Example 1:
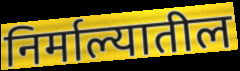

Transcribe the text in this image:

निर्माल्यातील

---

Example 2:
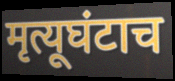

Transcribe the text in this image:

मृत्यूघंटाच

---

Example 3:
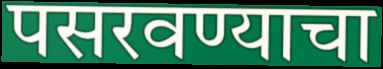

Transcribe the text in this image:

पसरवण्याचा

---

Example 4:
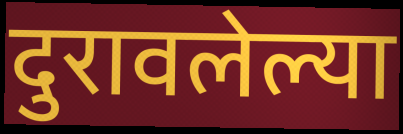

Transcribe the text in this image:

दुरावलेल्या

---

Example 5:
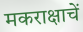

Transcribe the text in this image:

मकराक्षाचें